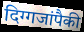
दिग्गजांपैकी